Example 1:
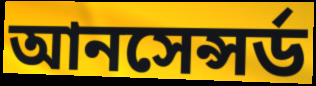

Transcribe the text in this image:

আনসেন্সর্ড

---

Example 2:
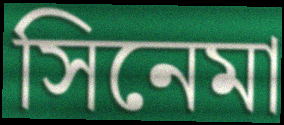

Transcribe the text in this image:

সিনেমা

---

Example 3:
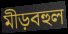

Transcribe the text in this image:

মীড়বহুল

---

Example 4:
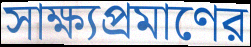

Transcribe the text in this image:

সাক্ষ্যপ্রমাণের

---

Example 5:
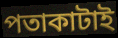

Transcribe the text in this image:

পতাকাটাই